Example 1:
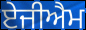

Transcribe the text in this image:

ਏਜੀਐਮ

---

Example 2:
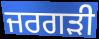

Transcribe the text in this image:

ਜਰਗੜੀ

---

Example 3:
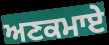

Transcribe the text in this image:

ਅਣਕਮਾਏ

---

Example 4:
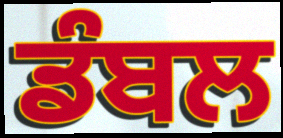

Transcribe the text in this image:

ਡੰਬਲ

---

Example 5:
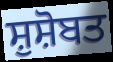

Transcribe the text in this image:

ਸ਼ੁਸ਼ੋਬਤ